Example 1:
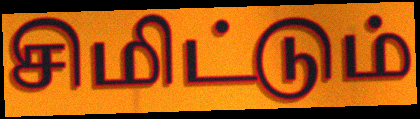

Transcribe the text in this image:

சிமிட்டும்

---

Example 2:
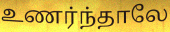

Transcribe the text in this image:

உணர்ந்தாலே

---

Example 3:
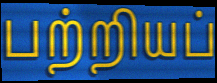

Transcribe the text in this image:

பற்றியப்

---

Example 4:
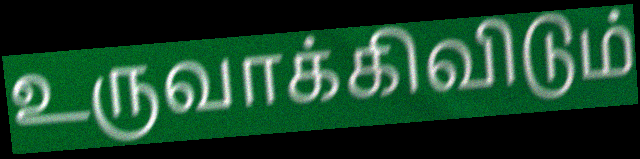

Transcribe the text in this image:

உருவாக்கிவிடும்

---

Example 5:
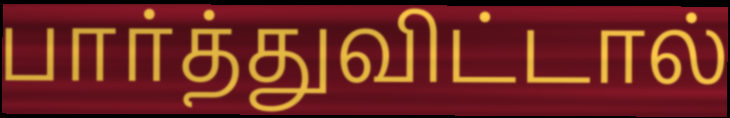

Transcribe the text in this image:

பார்த்துவிட்டால்